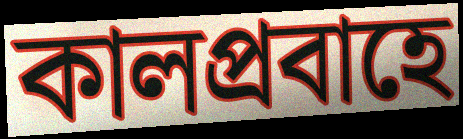
কালপ্রবাহে